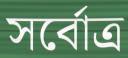
সর্বোত্র